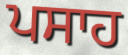
ਪਸਾਹ